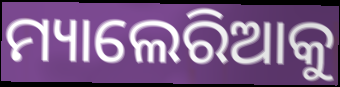
ମ୍ୟାଲେରିଆକୁ